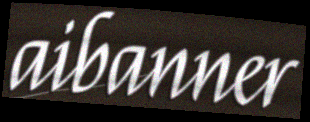
aibanner